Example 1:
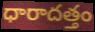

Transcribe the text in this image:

ధారాదత్తం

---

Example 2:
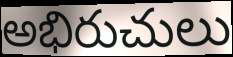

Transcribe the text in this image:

అభిరుచులు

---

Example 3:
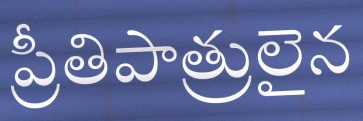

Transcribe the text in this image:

ప్రీతిపాత్రులైన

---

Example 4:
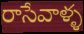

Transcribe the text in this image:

రాసేవాళ్ళ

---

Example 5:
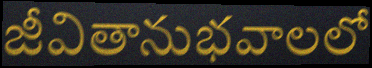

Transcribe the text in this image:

జీవితానుభవాలలో